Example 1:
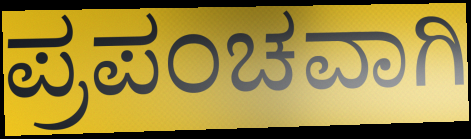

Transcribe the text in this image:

ಪ್ರಪಂಚವಾಗಿ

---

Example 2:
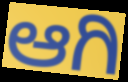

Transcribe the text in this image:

ಆಗಿ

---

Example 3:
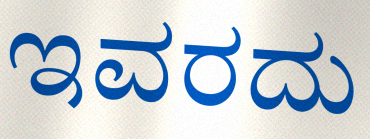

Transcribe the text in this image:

ಇವರದು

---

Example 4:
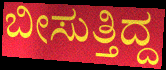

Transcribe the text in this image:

ಬೀಸುತ್ತಿದ್ದ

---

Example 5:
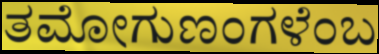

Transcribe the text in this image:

ತಮೋಗುಣಂಗಳೆಂಬ